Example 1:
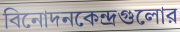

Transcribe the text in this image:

বিনোদনকেন্দ্রগুলোর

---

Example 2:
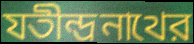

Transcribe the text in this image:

যতীন্দ্রনাথের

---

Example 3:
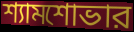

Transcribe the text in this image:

শ্যামশোভার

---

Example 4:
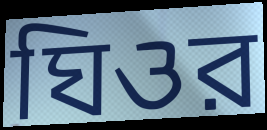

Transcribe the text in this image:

ঘিওর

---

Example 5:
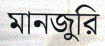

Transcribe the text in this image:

মানজুরি